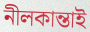
নীলকান্তাই